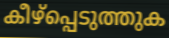
കീഴ്പ്പെടുത്തുക